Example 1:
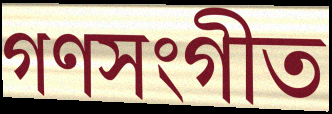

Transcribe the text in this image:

গণসংগীত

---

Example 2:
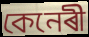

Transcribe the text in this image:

কেনেৰী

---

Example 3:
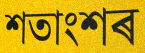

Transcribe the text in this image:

শতাংশৰ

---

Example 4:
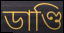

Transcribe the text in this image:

ডাণ্ডি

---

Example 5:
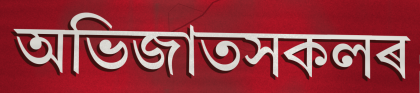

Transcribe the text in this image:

অভিজাতসকলৰ